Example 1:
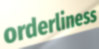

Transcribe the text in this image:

orderliness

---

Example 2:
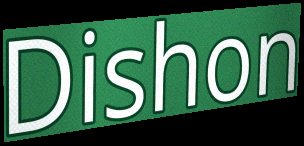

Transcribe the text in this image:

Dishon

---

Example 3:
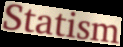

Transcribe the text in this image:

Statism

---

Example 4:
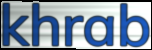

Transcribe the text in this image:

khrab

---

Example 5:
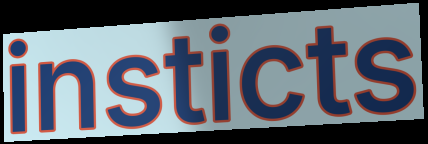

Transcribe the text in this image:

insticts